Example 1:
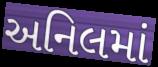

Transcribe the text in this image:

અનિલમાં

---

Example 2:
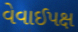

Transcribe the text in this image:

વેવાઈપક્ષ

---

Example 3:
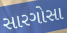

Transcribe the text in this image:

સારગોસા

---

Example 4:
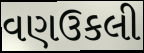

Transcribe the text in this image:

વણઉકલી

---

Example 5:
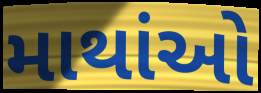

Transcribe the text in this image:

માથાંઓ